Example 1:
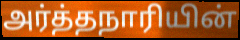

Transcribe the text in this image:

அர்த்தநாரியின்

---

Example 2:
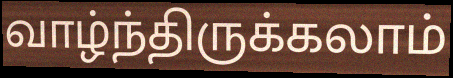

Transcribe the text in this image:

வாழ்ந்திருக்கலாம்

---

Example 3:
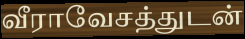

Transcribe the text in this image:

வீராவேசத்துடன்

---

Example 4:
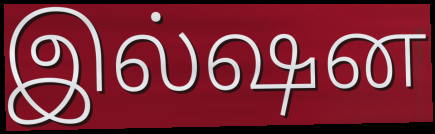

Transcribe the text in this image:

இல்ஷன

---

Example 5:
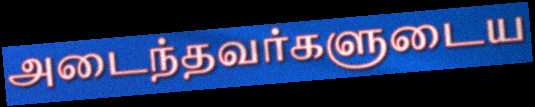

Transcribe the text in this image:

அடைந்தவர்களுடைய